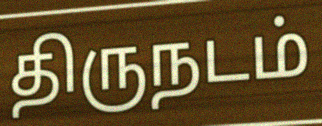
திருநடம்